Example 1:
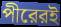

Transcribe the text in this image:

পীরেরই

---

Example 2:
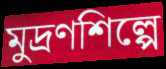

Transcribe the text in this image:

মুদ্রণশিল্পে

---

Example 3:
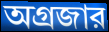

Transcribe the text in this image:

অগ্রজার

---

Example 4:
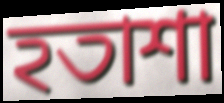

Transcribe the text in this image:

হতাশা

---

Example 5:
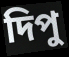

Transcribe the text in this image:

দিপু